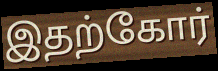
இதற்கோர்